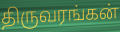
திருவரங்கன்